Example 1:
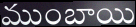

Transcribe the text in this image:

ముంబాయి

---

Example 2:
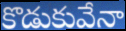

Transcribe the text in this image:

కొడుకువేనా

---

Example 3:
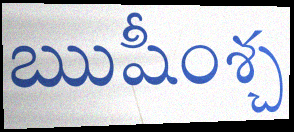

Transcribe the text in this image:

ఋషీంశ్చ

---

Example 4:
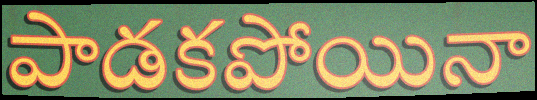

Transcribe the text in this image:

పాడకపోయినా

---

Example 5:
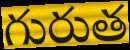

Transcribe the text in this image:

గురుత